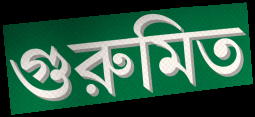
গুরুমিত